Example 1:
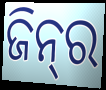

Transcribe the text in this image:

ଜିନ୍‌ର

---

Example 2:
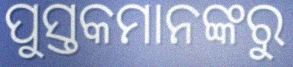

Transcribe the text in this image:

ପୁସ୍ତକମାନଙ୍କରୁ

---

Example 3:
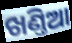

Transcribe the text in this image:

ଖଣ୍ତିଆ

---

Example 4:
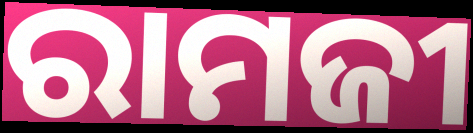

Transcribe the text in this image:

ରାମଜୀ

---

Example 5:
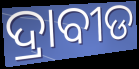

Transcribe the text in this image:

ଦ୍ରାବୀଡ